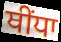
ਥੀਂਧਾ